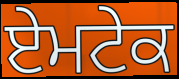
ਏਮਟੇਕ